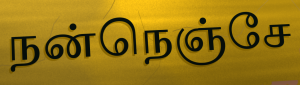
நன்நெஞ்சே